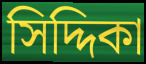
সিদ্দিকা